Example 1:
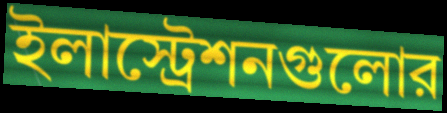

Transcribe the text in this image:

ইলাস্ট্রেশনগুলোর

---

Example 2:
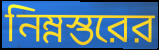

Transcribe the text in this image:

নিম্নস্তরের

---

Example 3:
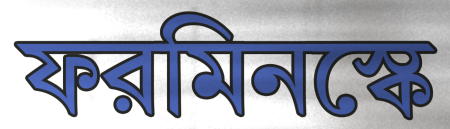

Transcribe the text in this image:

ফরমিনস্কে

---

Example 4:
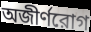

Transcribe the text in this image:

অজীর্ণরোগ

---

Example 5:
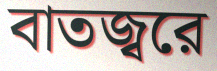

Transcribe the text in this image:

বাতজ্বরে